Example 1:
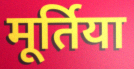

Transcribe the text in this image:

मूर्तिया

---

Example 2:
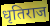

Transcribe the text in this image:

धृतिराज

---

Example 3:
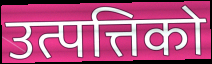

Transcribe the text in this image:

उत्पत्तिको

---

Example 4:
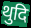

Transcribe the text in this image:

थुदि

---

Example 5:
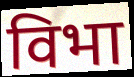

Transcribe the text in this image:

विभा